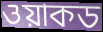
ওয়াকড